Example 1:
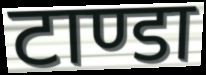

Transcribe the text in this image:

टाण्डा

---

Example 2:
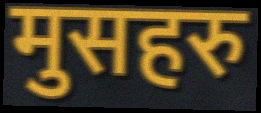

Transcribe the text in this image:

मुसहरु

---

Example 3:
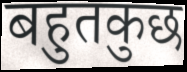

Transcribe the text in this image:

बहुतकुछ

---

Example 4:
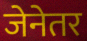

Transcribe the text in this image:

जेनेतर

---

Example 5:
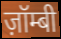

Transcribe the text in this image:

ज़ॉम्बी